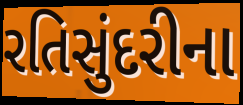
રતિસુંદરીના